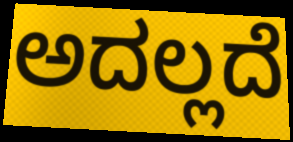
ಅದಲ್ಲದೆ